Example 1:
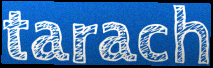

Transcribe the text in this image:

tarach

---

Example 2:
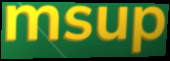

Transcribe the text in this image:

msup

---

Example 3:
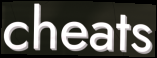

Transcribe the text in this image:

cheats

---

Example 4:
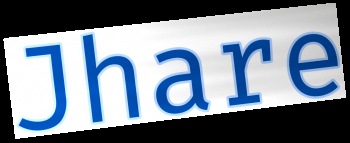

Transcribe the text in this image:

Jhare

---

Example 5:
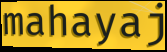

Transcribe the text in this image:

mahayaj